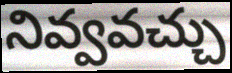
నివ్వవచ్చు